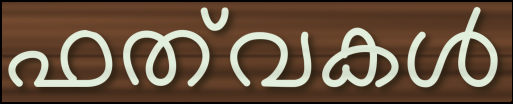
ഫത്‌വകൾ